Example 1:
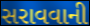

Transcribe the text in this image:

સરાવવાની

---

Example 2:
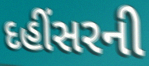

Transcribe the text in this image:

દહીંસરની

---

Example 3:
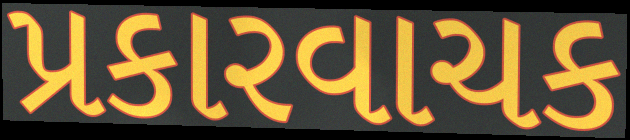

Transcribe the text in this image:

પ્રકારવાચક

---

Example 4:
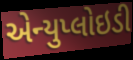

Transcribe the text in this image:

એન્યુપ્લોઇડી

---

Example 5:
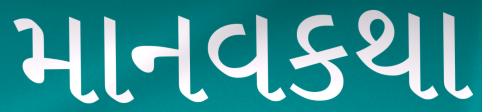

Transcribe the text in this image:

માનવકથા